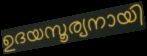
ഉദയസൂര്യനായി